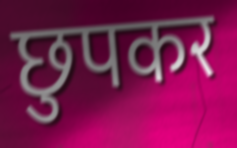
छुपकर